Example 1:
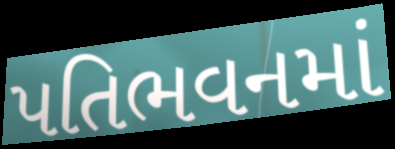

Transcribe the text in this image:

પતિભવનમાં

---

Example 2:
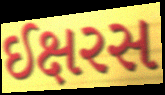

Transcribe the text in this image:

ઈક્ષરસ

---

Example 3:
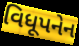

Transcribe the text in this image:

વિધૂપનેન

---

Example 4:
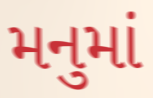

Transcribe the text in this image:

મનુમાં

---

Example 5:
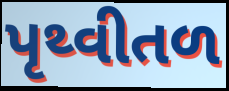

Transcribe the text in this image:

પૃથ્વીતળ